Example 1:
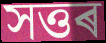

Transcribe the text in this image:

সত্তৰ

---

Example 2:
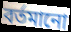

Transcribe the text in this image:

বৰ্তমানো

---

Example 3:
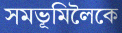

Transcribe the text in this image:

সমভূমিলৈকে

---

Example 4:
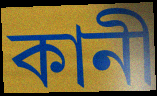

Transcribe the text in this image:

কানী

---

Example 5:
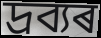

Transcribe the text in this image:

দ্ৰব্যৰ